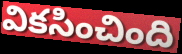
వికసించింది